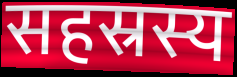
सहस्रस्य